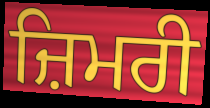
ਜ਼ਿਮਰੀ